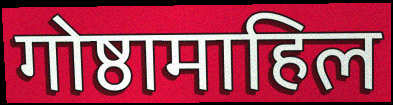
गोष्ठामाहिल